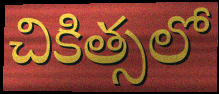
చికిత్సలో